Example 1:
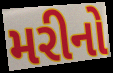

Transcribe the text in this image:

મરીનો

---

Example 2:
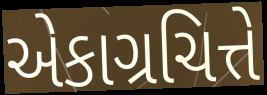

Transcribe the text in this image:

એકાગ્રચિત્તે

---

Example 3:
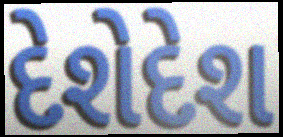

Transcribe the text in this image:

દેશેદેશ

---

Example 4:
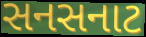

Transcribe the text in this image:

સનસનાટ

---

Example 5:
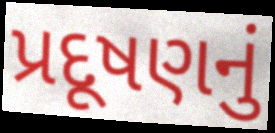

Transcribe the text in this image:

પ્રદૂષણનું